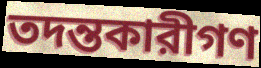
তদন্তকারীগণ